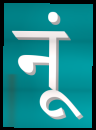
नूं